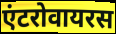
एंटरोवायरस